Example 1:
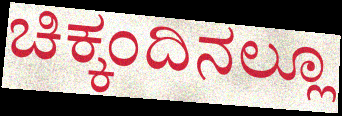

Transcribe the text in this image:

ಚಿಕ್ಕಂದಿನಲ್ಲೂ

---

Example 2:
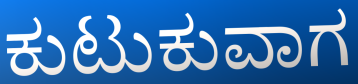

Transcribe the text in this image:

ಕುಟುಕುವಾಗ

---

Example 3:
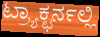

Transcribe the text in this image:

ಟ್ರ್ಯಾಕ್ಟರ್ನಲ್ಲಿ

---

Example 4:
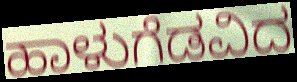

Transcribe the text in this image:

ಹಾಳುಗೆಡವಿದ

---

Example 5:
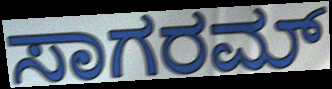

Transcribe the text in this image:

ಸಾಗರಮ್